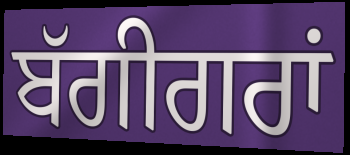
ਬੱਗੀਗਰਾਂ